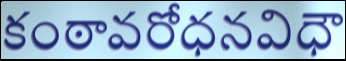
కంఠావరోధనవిధౌ